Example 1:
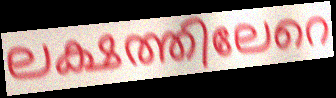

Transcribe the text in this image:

ലക്ഷത്തിലേറെ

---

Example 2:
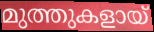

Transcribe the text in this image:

മുത്തുകളായ്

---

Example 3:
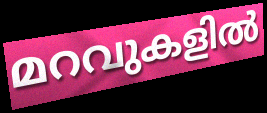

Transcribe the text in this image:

മറവുകളിൽ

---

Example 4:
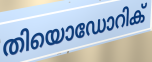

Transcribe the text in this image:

തിയൊഡോറിക്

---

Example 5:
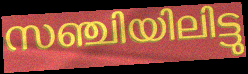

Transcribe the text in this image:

സഞ്ചിയിലിട്ടു